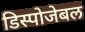
डिस्पोजेबल